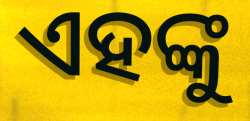
ଏହଙ୍କୁ